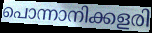
പൊന്നാനിക്കളരി